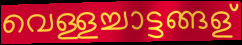
വെള്ളച്ചാട്ടങ്ങള്